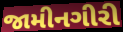
જામીનગીરી